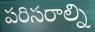
పరిసరాల్ని